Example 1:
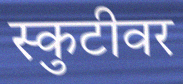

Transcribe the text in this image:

स्कुटीवर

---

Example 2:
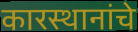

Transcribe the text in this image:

कारस्थानांचे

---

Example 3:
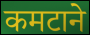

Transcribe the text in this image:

कमटाने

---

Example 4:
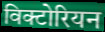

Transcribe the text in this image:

विक्टोरियन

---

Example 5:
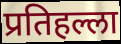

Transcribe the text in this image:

प्रतिहल्ला